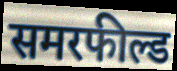
समरफील्ड